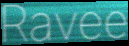
Ravee